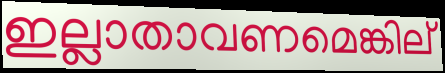
ഇല്ലാതാവണമെങ്കില്